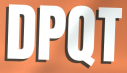
DPQT